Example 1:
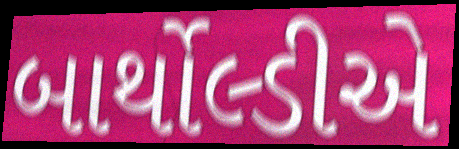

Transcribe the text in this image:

બાર્થોલ્ડીએ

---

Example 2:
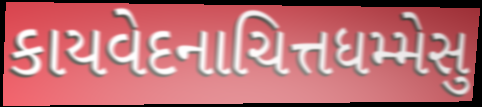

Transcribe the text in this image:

કાયવેદનાચિત્તધમ્મેસુ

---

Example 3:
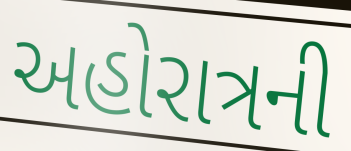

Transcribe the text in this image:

અહોરાત્રની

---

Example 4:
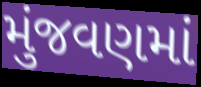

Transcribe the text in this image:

મુંજવણમાં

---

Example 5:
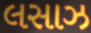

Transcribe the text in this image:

લસાઝ